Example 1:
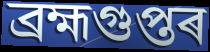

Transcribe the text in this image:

ব্ৰহ্মগুপ্তৰ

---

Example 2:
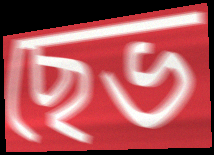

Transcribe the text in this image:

ছেভ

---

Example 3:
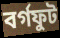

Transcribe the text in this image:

বৰ্গফুট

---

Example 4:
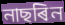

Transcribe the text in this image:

নাছৰিন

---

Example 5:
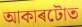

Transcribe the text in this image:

আকাৰটোত